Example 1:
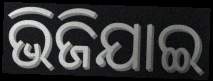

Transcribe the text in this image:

ଭିଜିଯାଇ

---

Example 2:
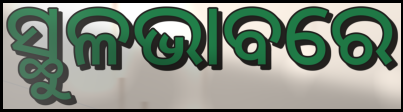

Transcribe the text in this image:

ସ୍ଥୁଳଭାବରେ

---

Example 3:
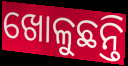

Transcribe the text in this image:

ଖୋଳୁଛନ୍ତି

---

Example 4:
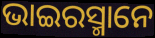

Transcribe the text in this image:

ଭାଇରସ୍ମାନେ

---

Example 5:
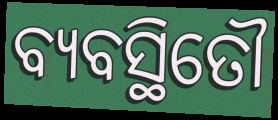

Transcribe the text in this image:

ବ୍ୟବସ୍ଥିତୌ